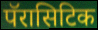
पॅरासिटिक